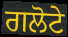
ਗਲੋਟੇ